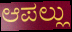
ಆಪಲ್ಲು